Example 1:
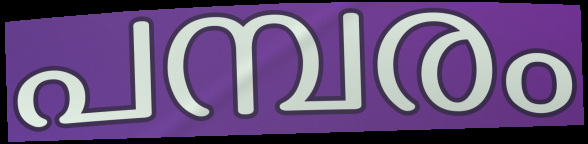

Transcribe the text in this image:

പമ്പരം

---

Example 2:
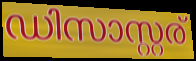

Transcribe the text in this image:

ഡിസാസ്റ്റര്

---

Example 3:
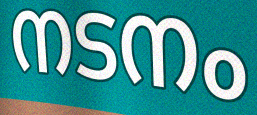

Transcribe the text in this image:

നടനം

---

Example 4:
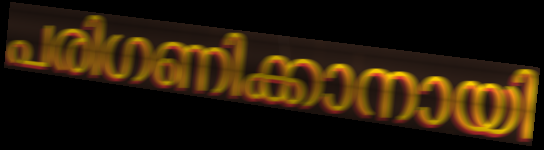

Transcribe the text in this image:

പരിഗണിക്കാനായി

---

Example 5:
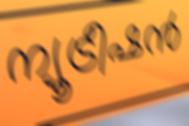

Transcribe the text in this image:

ന്യൂട്രീഷൻ